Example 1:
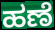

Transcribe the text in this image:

ಹಣೆ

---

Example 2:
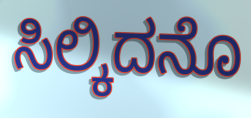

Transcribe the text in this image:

ಸಿಲ್ಕಿದನೊ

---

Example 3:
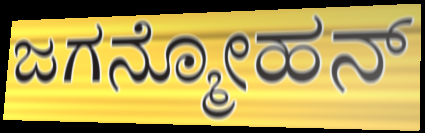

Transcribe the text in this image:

ಜಗನ್ಮೋಹನ್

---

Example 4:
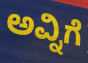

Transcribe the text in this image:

ಅವ್ನಿಗೆ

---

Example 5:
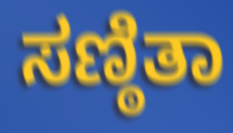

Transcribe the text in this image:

ಸಣ್ಠಿತಾ